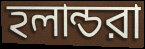
হলান্ডরা